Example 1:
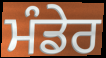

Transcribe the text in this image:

ਮੰਡੇਰ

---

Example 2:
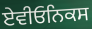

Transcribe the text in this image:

ਏਵੀਓਨਿਕਸ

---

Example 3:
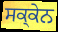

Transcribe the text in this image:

ਸਕ੍ਕੇਨ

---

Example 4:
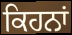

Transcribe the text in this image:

ਕਿਹਨਾਂ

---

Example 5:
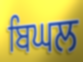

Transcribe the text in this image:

ਬਿਘਲ